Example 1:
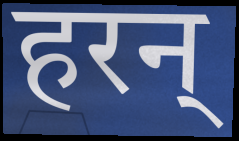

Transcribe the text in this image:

हरन्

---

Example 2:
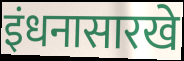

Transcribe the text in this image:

इंधनासारखे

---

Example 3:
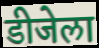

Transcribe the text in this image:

डीजेला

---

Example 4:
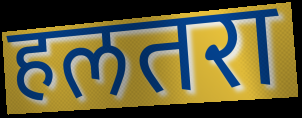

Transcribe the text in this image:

हलतरा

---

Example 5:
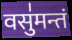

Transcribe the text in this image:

वसु॑मन्तं